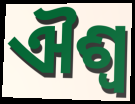
ଐଶ୍ୱ